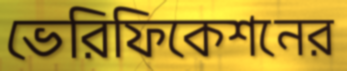
ভেরিফিকেশনের